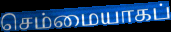
செம்மையாகப்